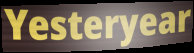
Yesteryear